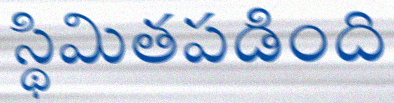
స్థిమితపడింది